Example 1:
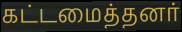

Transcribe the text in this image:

கட்டமைத்தனர்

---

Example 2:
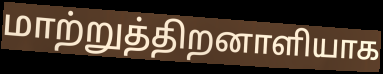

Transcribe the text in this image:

மாற்றுத்திறனாளியாக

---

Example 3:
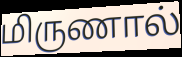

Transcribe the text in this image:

மிருணால்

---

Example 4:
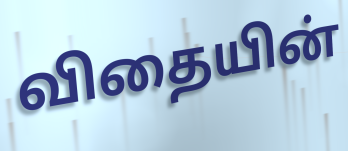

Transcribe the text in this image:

விதையின்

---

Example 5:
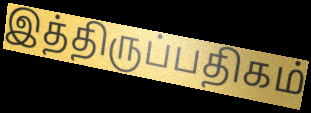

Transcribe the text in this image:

இத்திருப்பதிகம்